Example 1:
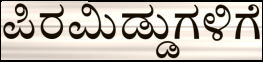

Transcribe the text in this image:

ಪಿರಮಿಡ್ಡುಗಳಿಗೆ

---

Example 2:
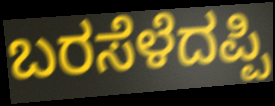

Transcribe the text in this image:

ಬರಸೆಳೆದಪ್ಪಿ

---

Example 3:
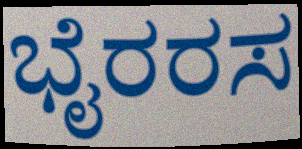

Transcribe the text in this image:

ಭೈರರಸ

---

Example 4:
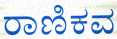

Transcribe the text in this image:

ರಾಣಿಕವ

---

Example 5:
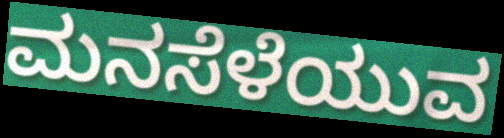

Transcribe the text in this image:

ಮನಸೆಳೆಯುವ